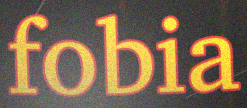
fobia